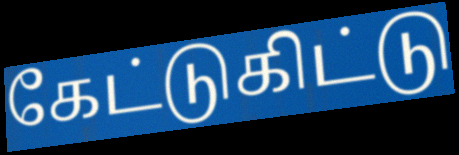
கேட்டுகிட்டு